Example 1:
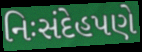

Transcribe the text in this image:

નિઃસંદેહપણે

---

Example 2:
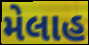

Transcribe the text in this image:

મેલાહ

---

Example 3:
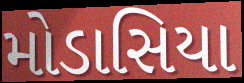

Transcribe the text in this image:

મોડાસિયા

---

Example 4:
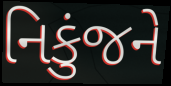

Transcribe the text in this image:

નિકુંજને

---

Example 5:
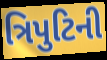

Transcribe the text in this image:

ત્રિપુટિની